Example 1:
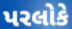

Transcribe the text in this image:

પરલોકે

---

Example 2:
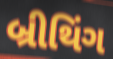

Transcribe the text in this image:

બ્રીથિંગ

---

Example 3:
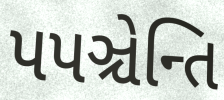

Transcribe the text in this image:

પપઞ્ચેન્તિ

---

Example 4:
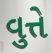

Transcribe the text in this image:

વુત્તે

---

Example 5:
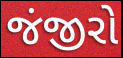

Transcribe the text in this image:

જંજીરો